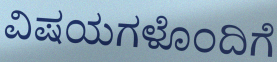
ವಿಷಯಗಳೊಂದಿಗೆ